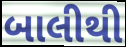
બાલીથી